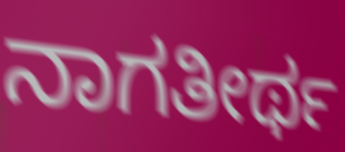
ನಾಗತೀರ್ಥ